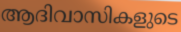
ആദിവാസികളുടെ